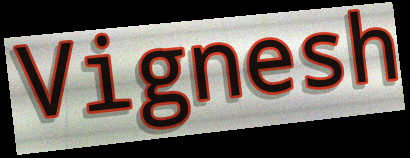
Vignesh